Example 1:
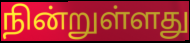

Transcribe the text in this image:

நின்றுள்ளது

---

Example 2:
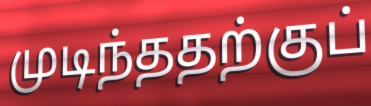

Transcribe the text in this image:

முடிந்ததற்குப்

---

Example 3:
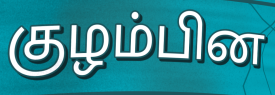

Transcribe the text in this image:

குழம்பின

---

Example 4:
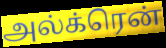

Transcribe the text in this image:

அல்க்ரென்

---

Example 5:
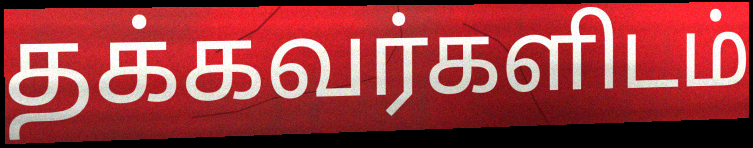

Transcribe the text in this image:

தக்கவர்களிடம்